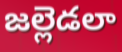
జల్లెడలా